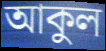
আকুল